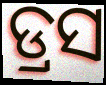
ଡ୍ରସ